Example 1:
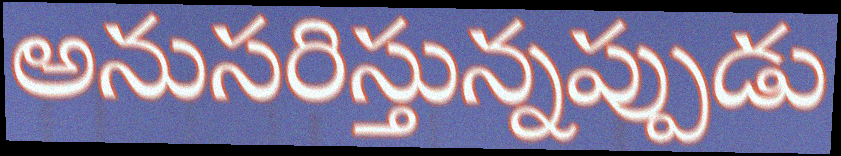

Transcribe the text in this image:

అనుసరిస్తున్నప్పుడు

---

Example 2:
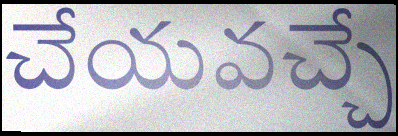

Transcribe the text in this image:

చేయవచ్చే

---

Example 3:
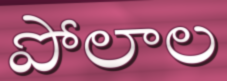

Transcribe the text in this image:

పోలాల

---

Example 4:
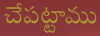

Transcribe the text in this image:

చేపట్టాము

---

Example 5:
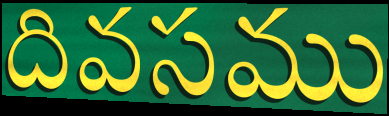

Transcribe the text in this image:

దివసము